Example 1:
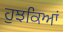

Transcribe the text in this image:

ਹੁਝਕਿਆਂ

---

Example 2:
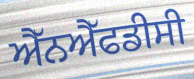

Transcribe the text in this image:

ਐੱਨਐੱਫਡੀਸੀ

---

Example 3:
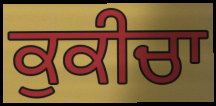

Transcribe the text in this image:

ਕੁਕੀਚਾ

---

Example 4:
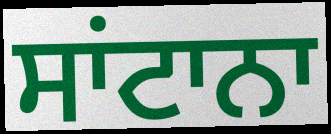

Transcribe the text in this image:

ਸਾਂਟਾਨਾ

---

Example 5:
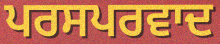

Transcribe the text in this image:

ਪਰਸਪਰਵਾਦ